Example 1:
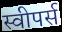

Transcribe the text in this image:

स्वीपर्स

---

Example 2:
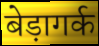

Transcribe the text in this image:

बेड़ागर्क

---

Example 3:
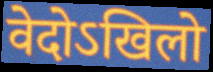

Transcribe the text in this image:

वेदोऽखिलो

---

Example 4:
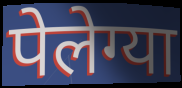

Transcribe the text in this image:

पेलेग्या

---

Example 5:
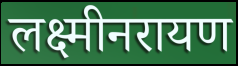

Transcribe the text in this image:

लक्ष्मीनरायण